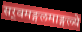
सर्वमङ्गलमाङ्गल्ये